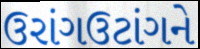
ઉરાંગઉટાંગને